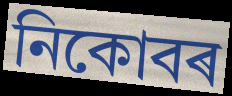
নিকোবৰ